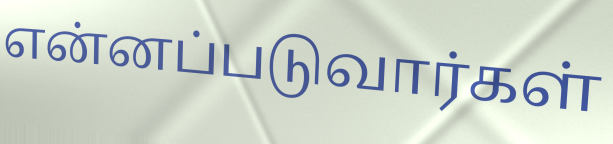
என்னப்படுவார்கள்